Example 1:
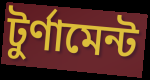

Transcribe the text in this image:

টুর্ণামেন্ট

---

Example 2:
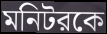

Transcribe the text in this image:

মনিটরকে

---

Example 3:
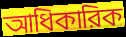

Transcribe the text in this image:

আধিকারিক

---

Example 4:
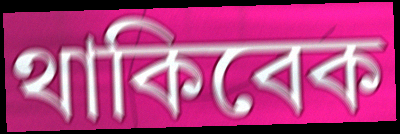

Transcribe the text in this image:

থাকিবেক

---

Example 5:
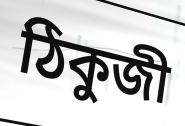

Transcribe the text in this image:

ঠিকুজী